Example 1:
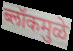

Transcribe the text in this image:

ब्लॉकमुळे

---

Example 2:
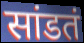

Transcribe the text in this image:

सांडतं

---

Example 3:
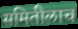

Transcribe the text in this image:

समितीलाच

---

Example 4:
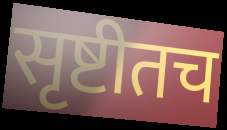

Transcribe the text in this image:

सृष्टीतच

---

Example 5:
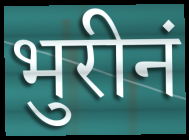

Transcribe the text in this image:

भुरीनं